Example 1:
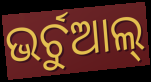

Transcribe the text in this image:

ଭର୍ଚୁଆଲ୍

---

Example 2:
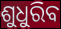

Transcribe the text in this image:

ଶୁଧୁରିବ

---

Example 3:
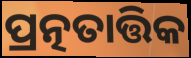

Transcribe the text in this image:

ପ୍ରତ୍ନତାତ୍ତିକ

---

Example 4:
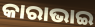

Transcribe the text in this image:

କାରାଭାଇ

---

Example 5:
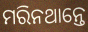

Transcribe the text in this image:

ମରିନଥାନ୍ତେ